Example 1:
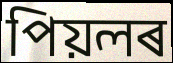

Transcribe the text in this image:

পিয়লৰ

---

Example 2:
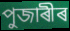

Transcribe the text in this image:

পুজাৰীৰ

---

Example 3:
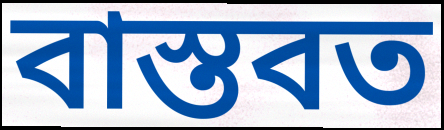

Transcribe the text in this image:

বাস্তবত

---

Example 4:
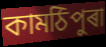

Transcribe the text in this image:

কামঠিপুৰা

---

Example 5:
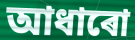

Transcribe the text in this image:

আধাৰো